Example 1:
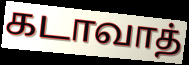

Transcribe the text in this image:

கடாவாத்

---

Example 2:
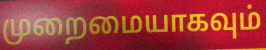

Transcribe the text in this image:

முறைமையாகவும்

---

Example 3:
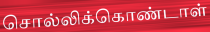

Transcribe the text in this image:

சொல்லிக்கொண்டாள்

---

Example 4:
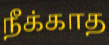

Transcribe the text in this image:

நீக்காத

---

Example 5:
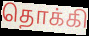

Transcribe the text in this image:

தொக்கி